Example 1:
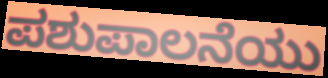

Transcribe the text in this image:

ಪಶುಪಾಲನೆಯು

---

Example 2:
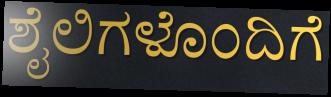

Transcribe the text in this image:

ಶೈಲಿಗಳೊಂದಿಗೆ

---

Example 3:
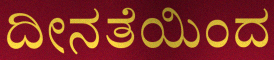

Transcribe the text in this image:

ದೀನತೆಯಿಂದ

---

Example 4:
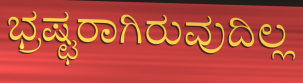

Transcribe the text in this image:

ಭ್ರಷ್ಟರಾಗಿರುವುದಿಲ್ಲ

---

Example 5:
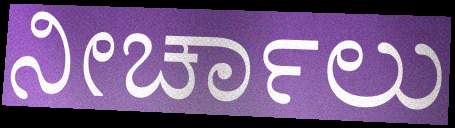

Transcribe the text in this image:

ನೀರ್ಚಾಲು